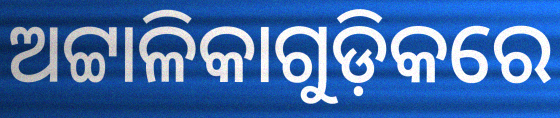
ଅଟ୍ଟାଳିକାଗୁଡ଼ିକରେ